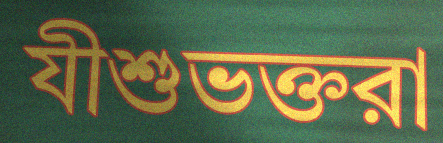
যীশুভক্তরা